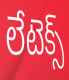
లేటెక్స్